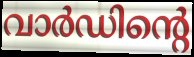
വാർഡിന്റെ